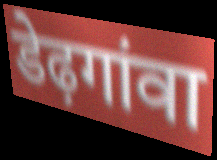
डेढ़गांवा